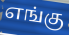
எங்கு